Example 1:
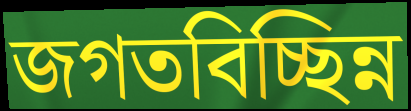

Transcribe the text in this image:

জগতবিচ্ছিন্ন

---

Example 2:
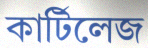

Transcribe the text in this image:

কার্টিলেজ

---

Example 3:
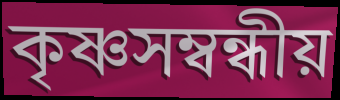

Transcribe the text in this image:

কৃষ্ণসম্বন্ধীয়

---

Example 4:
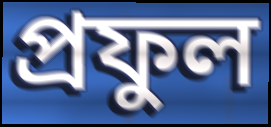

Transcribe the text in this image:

প্রফুল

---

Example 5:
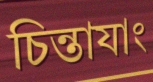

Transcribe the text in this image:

চিন্তাযাং